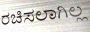
ರಚಿಸಲಾಗಿಲ್ಲ